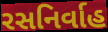
રસનિર્વાહ